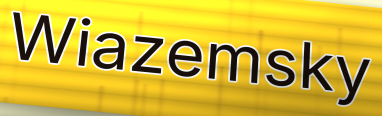
Wiazemsky